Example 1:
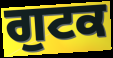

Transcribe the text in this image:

ਗੁਟਕ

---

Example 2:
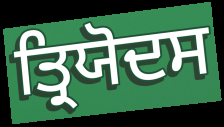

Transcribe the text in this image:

ਤ੍ਰਿਯੋਦਸ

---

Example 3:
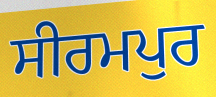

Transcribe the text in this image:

ਸੀਰਮਪੁਰ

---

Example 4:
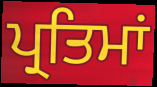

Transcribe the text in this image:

ਪ੍ਰਤਿਮਾਂ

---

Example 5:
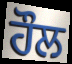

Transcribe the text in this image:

ਹੌਲ